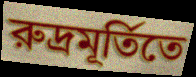
রুদ্রমূর্তিতে